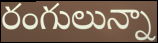
రంగులున్నా